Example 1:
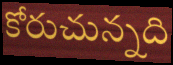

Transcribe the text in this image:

కోరుచున్నది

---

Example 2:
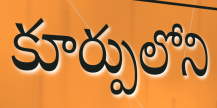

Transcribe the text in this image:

కూర్పులోని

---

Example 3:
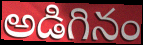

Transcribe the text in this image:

అడిగినం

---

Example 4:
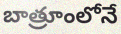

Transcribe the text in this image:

బాత్రూంలోనే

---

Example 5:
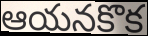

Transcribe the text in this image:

ఆయనకొక